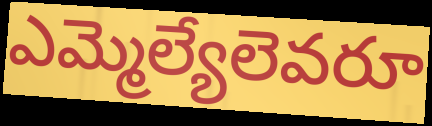
ఎమ్మెల్యేలెవరూ